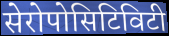
सेरोपोसिटिविटी